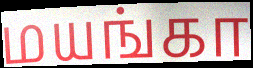
மயங்கா